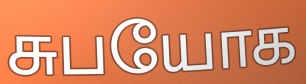
சுபயோக